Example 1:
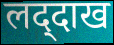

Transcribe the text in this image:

लद्‌दाख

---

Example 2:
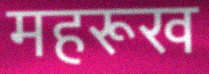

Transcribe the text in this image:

महरूख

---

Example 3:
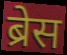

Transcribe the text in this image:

ब्रेस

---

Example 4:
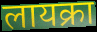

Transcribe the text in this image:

लायक्रा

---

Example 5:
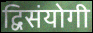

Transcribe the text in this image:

द्विसंयोगी